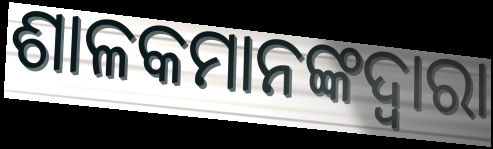
ଶାଳକମାନଙ୍କଦ୍ୱାରା